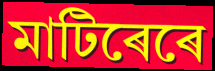
মাটিৰেৰে